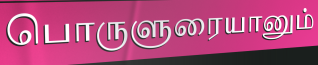
பொருளுரையானும்